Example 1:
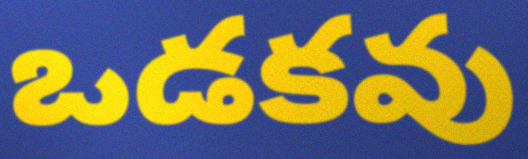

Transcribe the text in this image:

ఒడకవు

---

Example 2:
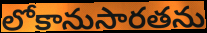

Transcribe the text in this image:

లోకానుసారతను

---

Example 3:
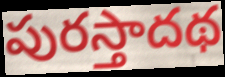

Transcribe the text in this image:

పురస్తాదథ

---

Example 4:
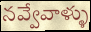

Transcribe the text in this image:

నవ్వేవాళ్ళు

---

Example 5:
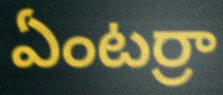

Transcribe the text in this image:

ఏంటర్రా